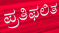
ಪ್ರತಿಫಲಿತ